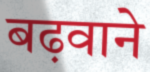
बढ़वाने